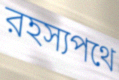
রহস্যপথে